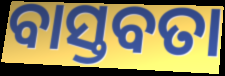
ବାସ୍ତବତା